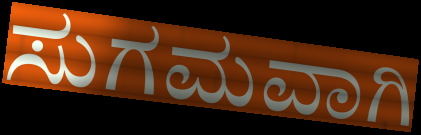
ಸುಗಮವಾಗಿ